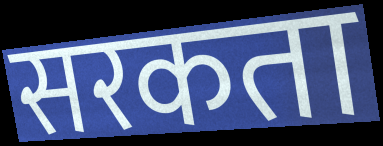
सरकता